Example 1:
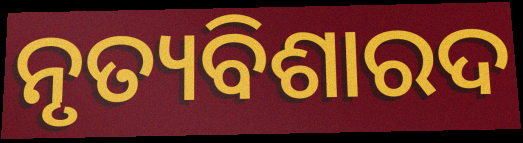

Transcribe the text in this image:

ନୃତ୍ୟବିଶାରଦ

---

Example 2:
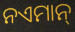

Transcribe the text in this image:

ନଏମାନ୍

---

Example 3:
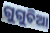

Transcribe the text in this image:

ଗୁଗୁଚିଆ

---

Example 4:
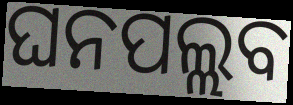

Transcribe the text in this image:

ଘନପଲ୍ଲବ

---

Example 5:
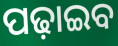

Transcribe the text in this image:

ପଢ଼ାଇବ